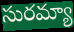
సురమ్యా